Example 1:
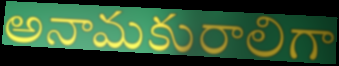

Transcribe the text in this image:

అనామకురాలిగా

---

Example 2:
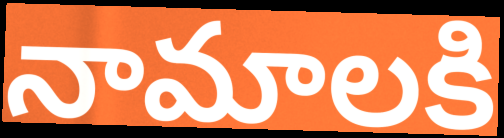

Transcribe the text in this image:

నామాలకి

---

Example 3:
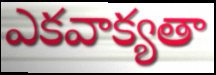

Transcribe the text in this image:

ఎకవాక్యతా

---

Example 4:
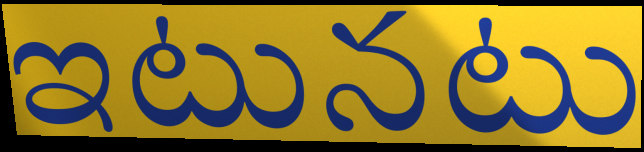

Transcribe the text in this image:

ఇటునటు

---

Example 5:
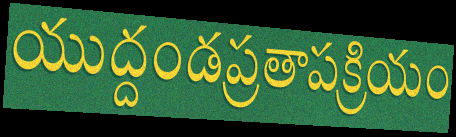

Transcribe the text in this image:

యుద్దండప్రతాపక్రియం